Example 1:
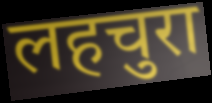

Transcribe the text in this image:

लहचुरा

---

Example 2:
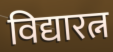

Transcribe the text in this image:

विद्यारत्न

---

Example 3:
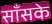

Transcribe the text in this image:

साँसके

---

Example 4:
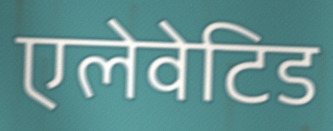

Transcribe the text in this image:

एलेवेटिड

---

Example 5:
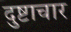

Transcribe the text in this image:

दुष्टाचार